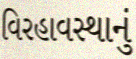
વિરહાવસ્થાનું